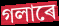
গলাৰে